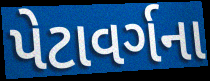
પેટાવર્ગના